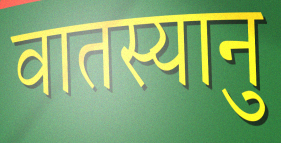
वातस्यानु